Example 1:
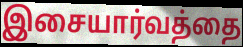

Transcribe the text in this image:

இசையார்வத்தை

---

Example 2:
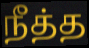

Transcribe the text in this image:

நீத்த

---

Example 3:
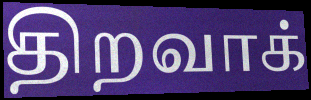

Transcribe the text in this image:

திறவாக்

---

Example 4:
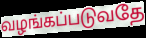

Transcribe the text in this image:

வழங்கப்படுவதே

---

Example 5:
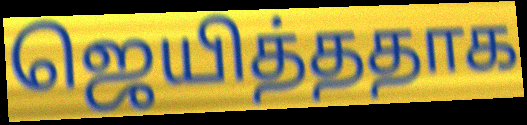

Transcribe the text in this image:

ஜெயித்ததாக